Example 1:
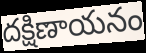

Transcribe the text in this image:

దక్షిణాయనం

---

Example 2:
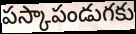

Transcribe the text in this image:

పస్కాపండుగకు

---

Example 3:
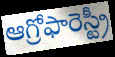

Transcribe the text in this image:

ఆగ్రోఫారెస్ట్రీ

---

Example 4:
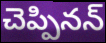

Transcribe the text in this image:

చెప్పినన్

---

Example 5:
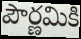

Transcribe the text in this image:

పౌర్ణమికి